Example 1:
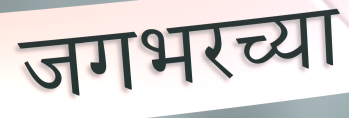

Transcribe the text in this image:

जगभरच्या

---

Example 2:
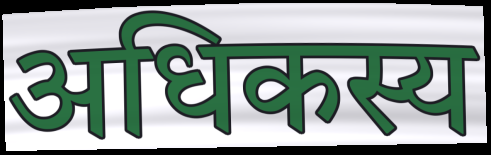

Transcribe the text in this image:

अधिकस्य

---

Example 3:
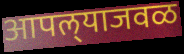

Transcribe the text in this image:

आपल्याजवळ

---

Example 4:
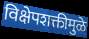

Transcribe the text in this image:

विक्षेपशक्तीमुळे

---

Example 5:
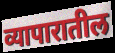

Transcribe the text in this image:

व्यापारातील